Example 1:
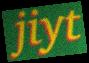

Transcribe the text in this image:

jiyt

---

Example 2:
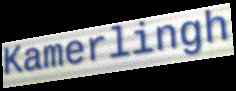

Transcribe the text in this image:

Kamerlingh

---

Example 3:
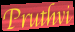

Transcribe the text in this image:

Pruthvi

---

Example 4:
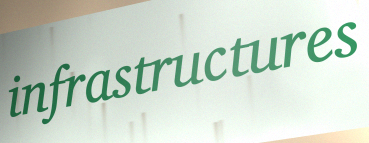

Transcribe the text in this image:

infrastructures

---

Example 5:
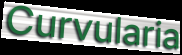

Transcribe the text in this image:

Curvularia